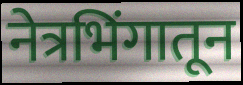
नेत्रभिंगातून